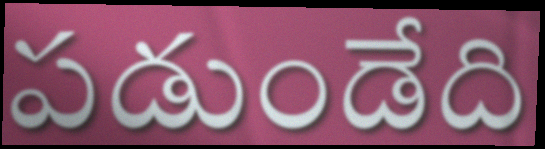
పడుండేది